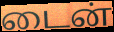
டைன்